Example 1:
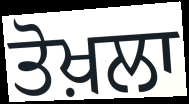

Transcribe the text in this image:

ਤੋਖ਼ਲਾ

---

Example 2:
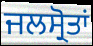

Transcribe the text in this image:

ਜਲਸ੍ਰੋਤਾਂ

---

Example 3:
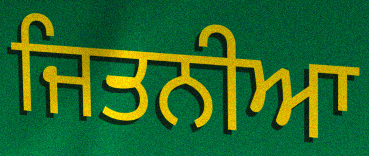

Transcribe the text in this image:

ਜਿਤਨੀਆ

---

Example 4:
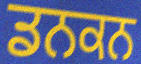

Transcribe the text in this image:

ਡਨਕਨ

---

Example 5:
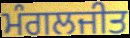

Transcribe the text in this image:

ਮੰਗਲਜੀਤ